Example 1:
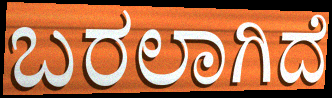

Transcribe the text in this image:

ಬರಲಾಗಿದೆ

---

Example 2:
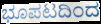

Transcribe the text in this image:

ಭೂಪಟದಿಂದ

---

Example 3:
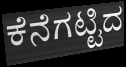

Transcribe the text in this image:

ಕೆನೆಗಟ್ಟಿದ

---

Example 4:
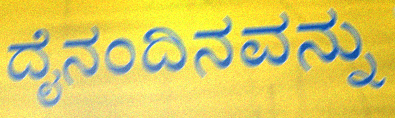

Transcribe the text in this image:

ದೈನಂದಿನವನ್ನು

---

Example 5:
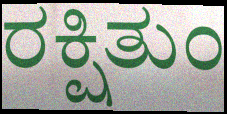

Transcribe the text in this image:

ರಕ್ಷಿತುಂ